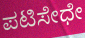
ಪಟಿಸೇಧೇ